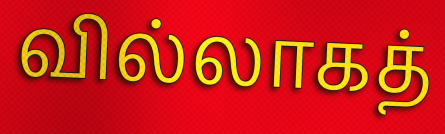
வில்லாகத்